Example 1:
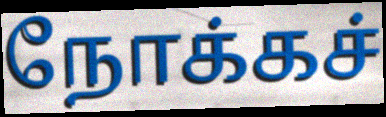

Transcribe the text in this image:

நோக்கச்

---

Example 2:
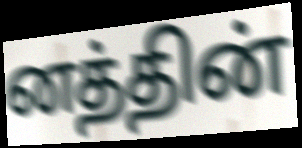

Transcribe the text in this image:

னத்தின்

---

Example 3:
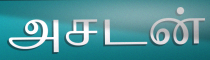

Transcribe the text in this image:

அசடன்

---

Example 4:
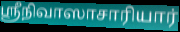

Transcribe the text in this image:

ஸ்ரீநிவாஸாசாரியார்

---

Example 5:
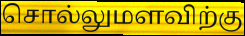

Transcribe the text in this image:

சொல்லுமளவிற்கு